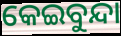
କେଇବୁନ୍ଦା